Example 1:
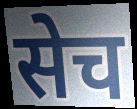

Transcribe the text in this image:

सेच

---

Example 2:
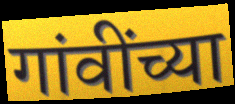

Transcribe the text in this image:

गांवींच्या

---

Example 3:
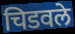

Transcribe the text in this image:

चिडवले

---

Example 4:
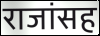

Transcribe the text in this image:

राजांसह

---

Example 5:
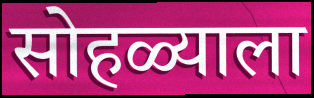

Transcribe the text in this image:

सोहळ्याला